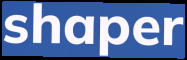
shaper